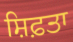
ਸ਼ਿਫ਼ਤਾ